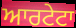
ਆਰਟੇਟਾ